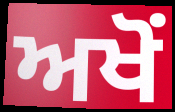
ਅਖੋਂ